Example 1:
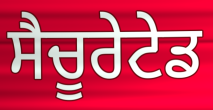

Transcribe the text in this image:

ਸੈਚੂਰੇਟੇਡ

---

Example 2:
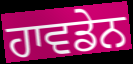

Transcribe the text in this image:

ਹਾਵਡੇਨ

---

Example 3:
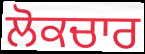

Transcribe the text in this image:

ਲੋਕਚਾਰ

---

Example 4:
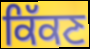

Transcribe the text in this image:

ਕਿੱਕਣ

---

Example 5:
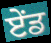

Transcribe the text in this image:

ਏੰਡ